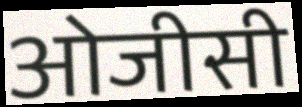
ओजीसी